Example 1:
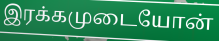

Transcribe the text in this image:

இரக்கமுடையோன்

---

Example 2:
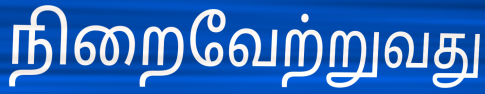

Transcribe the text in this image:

நிறைவேற்றுவது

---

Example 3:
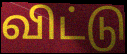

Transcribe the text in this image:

விட்டு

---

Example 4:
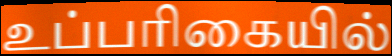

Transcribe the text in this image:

உப்பரிகையில்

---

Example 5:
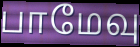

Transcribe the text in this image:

பாமேவு